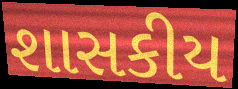
શાસકીય